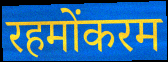
रहमोंकरम